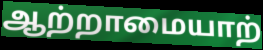
ஆற்றாமையாற்